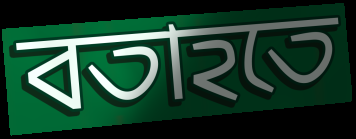
বতাহতে